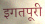
इगतपूरी